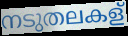
നടുതലകള്